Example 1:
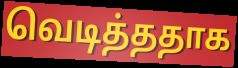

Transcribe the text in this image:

வெடித்ததாக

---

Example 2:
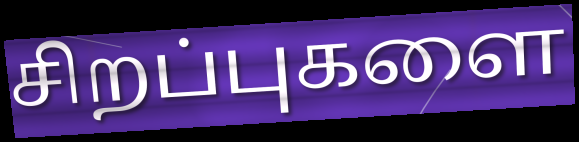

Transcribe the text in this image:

சிறப்புகளை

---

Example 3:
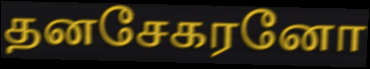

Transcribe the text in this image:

தனசேகரனோ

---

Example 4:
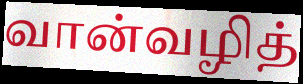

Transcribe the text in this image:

வான்வழித்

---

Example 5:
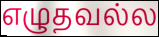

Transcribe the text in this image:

எழுதவல்ல